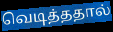
வெடித்ததால்